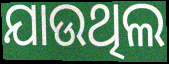
ଯାଉଥିଲ